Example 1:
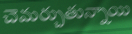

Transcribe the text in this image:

చెమర్చుతున్నాయి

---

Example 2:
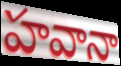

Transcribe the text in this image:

హవానా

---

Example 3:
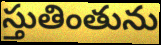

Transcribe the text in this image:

స్తుతింతును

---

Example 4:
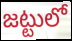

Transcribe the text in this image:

జట్టులో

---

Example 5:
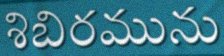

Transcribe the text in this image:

శిబిరమును